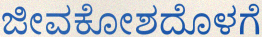
ಜೀವಕೋಶದೊಳಗೆ